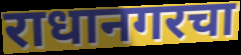
राधानगरचा